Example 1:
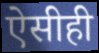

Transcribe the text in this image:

ऐसीही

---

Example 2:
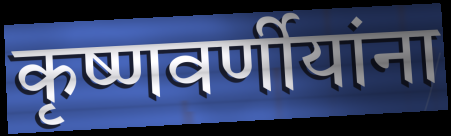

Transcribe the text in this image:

कृष्णवर्णीयांना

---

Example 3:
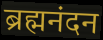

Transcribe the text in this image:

ब्रह्मनंदन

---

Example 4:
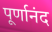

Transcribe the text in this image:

पूर्णानंद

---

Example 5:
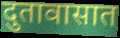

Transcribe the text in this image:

दुतावासात